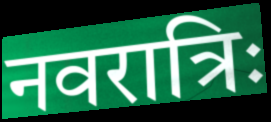
नवरात्रिः